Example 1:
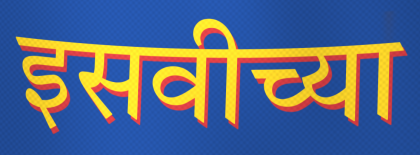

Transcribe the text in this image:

इसवीच्या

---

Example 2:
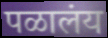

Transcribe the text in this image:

पळालंय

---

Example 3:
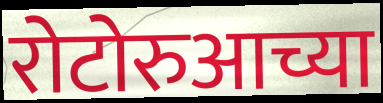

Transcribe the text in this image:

रोटोरुआच्या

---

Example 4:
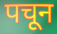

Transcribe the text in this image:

पचून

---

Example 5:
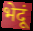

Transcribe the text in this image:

भेदूं